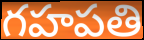
గహపతి